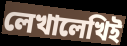
লেখালেখিই